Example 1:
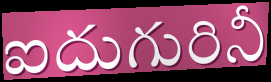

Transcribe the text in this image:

ఐదుగురినీ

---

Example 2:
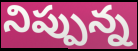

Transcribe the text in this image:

నిప్పున్న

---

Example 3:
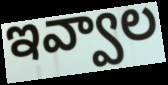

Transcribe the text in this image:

ఇవ్వాల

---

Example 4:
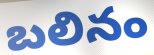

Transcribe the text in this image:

బలినం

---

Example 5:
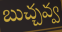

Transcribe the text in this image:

బుచ్చవ్వ